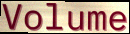
Volume